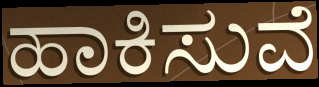
ಹಾಕಿಸುವೆ